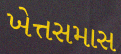
ખેત્તસમાસ